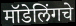
मॉडेलिंगचे